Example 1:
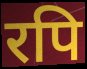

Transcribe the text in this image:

रपि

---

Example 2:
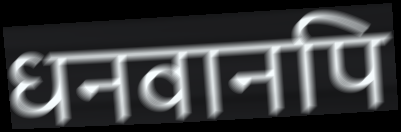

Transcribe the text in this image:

धनवानपि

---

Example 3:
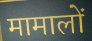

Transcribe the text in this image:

मामालों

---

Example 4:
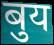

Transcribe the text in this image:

बुय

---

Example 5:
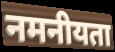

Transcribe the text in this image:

नमनीयता